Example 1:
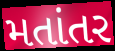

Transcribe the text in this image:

મતાંતર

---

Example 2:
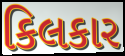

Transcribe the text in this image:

કિલકાર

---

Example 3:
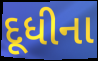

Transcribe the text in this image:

દૂધીના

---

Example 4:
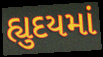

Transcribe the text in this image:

હ્યુદયમાં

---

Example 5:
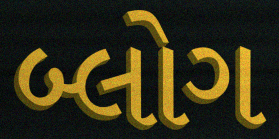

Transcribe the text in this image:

બ્લોગ